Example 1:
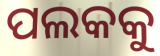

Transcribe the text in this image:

ପଲକକୁ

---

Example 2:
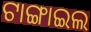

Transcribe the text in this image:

ଟାଙ୍ଗାଇଲ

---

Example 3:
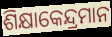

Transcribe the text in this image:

ଶିକ୍ଷାକେନ୍ଦ୍ରମାନ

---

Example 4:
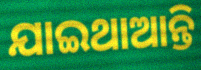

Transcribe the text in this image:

ଯାଇଥାଆନ୍ତି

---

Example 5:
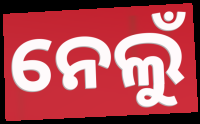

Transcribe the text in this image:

ନେଲୁଁ